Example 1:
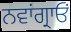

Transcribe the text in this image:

ਨਵਾਂਗ੍ਰਾਓਂ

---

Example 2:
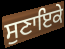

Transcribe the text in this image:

ਸੁਣਾਇਕੇ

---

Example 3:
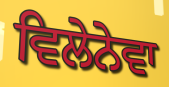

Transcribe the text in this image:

ਵਿਲੇਨੇਵਾ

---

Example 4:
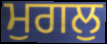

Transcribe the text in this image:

ਮੁਗਲੁ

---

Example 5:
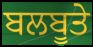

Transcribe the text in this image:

ਬਲਬੂਤੇ